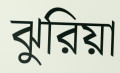
ঝুরিয়া